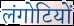
लंगोटियों